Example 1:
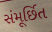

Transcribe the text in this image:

સંમૂર્છિત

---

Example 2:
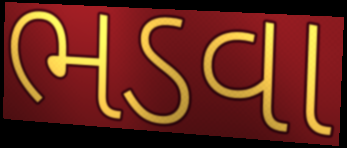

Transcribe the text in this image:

ભડવા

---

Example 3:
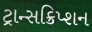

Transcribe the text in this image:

ટ્રાન્સક્રિપ્શન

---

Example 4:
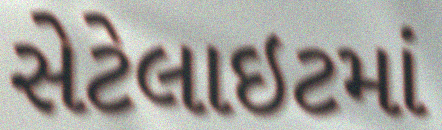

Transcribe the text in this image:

સેટેલાઇટમાં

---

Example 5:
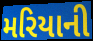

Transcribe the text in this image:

મરિયાની